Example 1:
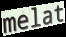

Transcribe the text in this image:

melat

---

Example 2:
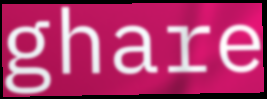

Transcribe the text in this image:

ghare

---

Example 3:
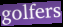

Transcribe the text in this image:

golfers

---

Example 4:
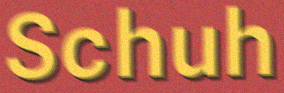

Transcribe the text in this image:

Schuh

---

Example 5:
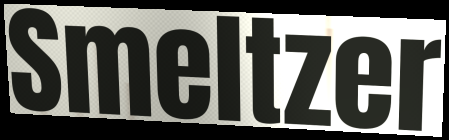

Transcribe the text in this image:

Smeltzer